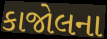
કાજોલના